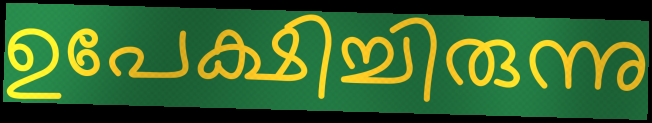
ഉപേക്ഷിച്ചിരുന്നു